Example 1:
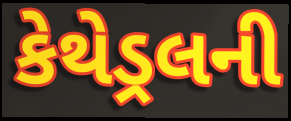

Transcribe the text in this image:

કેથેડ્રલની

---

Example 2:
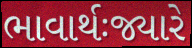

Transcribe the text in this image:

ભાવાર્થઃજ્યારે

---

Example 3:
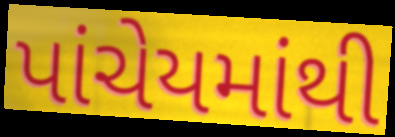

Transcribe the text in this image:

પાંચેયમાંથી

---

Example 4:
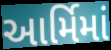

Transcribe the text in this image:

આર્મિમાં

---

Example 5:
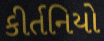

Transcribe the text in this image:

કીર્તનિયો